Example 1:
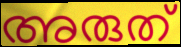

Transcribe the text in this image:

അരുത്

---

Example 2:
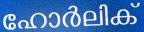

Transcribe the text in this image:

ഹോർലിക്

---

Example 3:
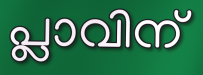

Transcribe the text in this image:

പ്ലാവിന്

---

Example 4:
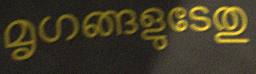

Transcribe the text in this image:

മൃഗങ്ങളുടേതു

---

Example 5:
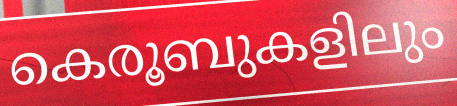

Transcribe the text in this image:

കെരൂബുകളിലും